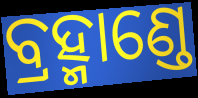
ବ୍ରହ୍ମାଣ୍ଡେ